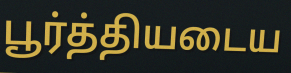
பூர்த்தியடைய